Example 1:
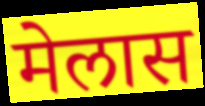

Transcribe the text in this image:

मेलास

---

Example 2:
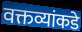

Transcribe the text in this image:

वक्तव्यांकडे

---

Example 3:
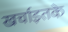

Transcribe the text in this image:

खर्चाइतके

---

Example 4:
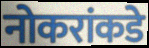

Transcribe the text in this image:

नोकरांकडे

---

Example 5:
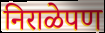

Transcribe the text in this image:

निराळेपण